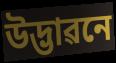
উদ্ভাৱনে